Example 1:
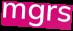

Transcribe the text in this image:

mgrs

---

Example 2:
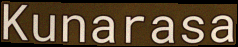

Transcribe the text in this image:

Kunarasa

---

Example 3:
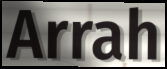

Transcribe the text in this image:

Arrah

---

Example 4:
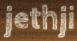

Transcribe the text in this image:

jethji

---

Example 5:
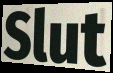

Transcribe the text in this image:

Slut